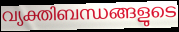
വ്യക്തിബന്ധങ്ങളുടെ